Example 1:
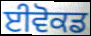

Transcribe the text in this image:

ਈਵੋਕਡ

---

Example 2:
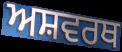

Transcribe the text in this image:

ਅਸ਼ਵਰਥ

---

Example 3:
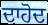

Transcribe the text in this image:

ਦਾਹੋਦ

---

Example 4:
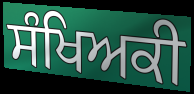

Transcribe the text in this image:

ਸੰਖਿਅਕੀ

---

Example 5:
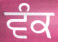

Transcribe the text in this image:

ਵੰਕ